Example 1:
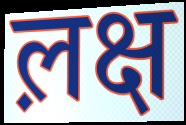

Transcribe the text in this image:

ल़क्ष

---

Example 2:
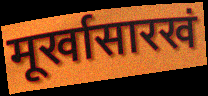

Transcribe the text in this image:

मूर्खासारखं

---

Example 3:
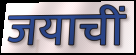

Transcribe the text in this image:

जयाचीं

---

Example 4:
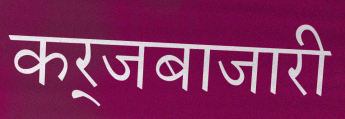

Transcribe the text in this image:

कर्जबाजारी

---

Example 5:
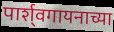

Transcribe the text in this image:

पार्श्वगायनाच्या